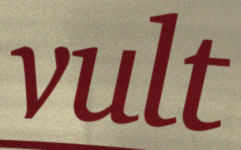
vult